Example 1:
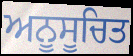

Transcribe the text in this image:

ਅਨੂਸੂਚਿਤ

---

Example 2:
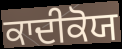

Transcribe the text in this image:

ਕਾਦੀਕੋਯ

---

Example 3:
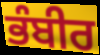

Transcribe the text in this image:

ਭੰਬੀਰ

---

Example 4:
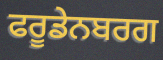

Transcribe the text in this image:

ਫਰੂਡੇਨਬਰਗ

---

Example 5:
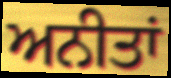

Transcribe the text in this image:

ਅਨੀਤਾਂ